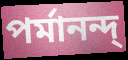
পর্মানন্দ্